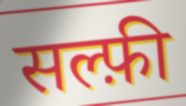
सल्फ़ी